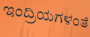
ಇಂದ್ರಿಯಗಳಂತೆ